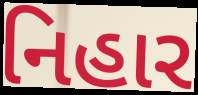
નિહાર